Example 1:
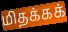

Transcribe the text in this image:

மிதக்கக்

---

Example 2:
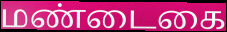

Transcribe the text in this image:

மண்டைகை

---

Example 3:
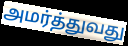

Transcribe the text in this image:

அமர்த்துவது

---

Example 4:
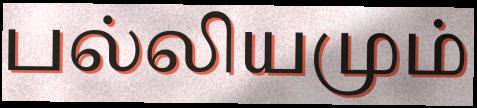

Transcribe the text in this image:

பல்லியமும்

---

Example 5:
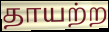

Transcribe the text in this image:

தாயற்ற